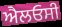
ਐਲਓਸੀ